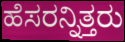
ಹೆಸರನ್ನಿತ್ತರು